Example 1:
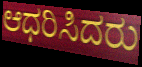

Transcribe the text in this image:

ಆಧರಿಸಿದರು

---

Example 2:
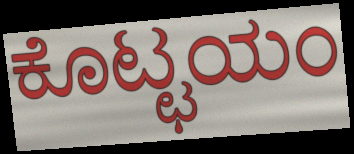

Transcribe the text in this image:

ಕೊಟ್ಟಯಂ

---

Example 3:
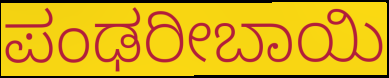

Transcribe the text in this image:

ಪಂಢರೀಬಾಯಿ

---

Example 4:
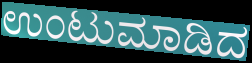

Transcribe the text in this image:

ಉಂಟುಮಾಡಿದ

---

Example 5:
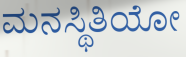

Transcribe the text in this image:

ಮನಸ್ಥಿತಿಯೋ